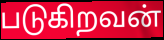
படுகிறவன்